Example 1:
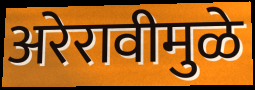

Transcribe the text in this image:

अरेरावीमुळे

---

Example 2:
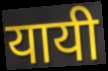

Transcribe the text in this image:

यायी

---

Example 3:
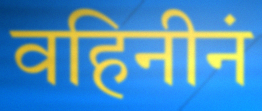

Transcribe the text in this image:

वहिनीनं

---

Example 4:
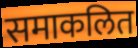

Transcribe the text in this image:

समाकलित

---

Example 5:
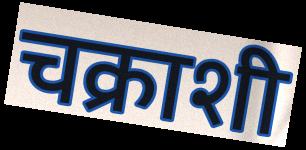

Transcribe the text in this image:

चक्राशी